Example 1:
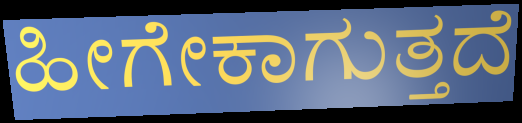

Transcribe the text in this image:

ಹೀಗೇಕಾಗುತ್ತದೆ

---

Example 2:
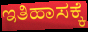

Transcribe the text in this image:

ಇತಿಹಾಸಕ್ಕೆ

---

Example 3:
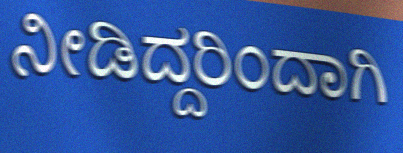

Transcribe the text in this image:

ನೀಡಿದ್ದರಿಂದಾಗಿ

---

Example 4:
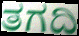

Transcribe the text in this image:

ತಗದಿ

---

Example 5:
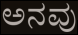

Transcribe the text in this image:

ಅನವು